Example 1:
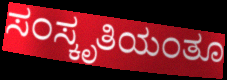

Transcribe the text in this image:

ಸಂಸ್ಕೃತಿಯಂತೂ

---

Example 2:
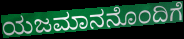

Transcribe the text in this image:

ಯಜಮಾನನೊಂದಿಗೆ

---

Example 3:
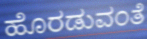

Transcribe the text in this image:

ಹೊರಡುವಂತೆ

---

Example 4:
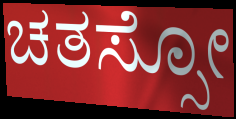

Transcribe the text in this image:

ಚತಸ್ಸೋ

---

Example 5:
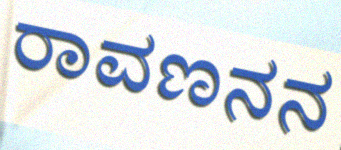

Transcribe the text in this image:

ರಾವಣನನ